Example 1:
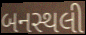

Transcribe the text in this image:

બનસ્થલી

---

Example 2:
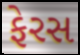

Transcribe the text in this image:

ફેરસ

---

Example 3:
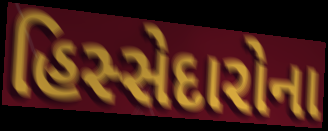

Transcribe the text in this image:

હિસ્સેદારોના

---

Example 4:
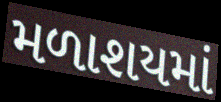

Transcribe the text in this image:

મળાશયમાં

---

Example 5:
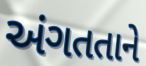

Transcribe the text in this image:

અંગતતાને